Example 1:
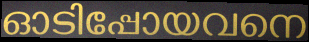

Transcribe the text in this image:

ഓടിപ്പോയവനെ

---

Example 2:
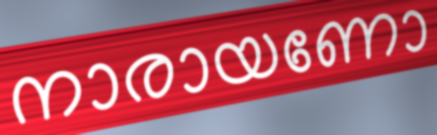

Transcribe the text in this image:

നാരായണോ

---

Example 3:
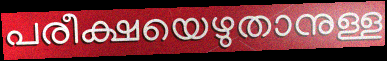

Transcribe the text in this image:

പരീക്ഷയെഴുതാനുള്ള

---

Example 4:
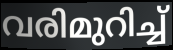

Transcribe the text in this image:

വരിമുറിച്ച്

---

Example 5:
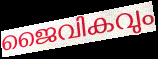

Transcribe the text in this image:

ജൈവികവും